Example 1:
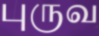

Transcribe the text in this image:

புருவ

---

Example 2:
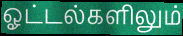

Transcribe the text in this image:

ஓட்டல்களிலும்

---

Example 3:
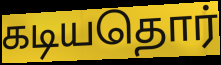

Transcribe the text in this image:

கடியதொர்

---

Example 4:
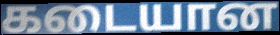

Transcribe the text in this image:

கடையான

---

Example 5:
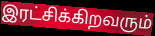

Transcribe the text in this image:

இரட்சிக்கிறவரும்